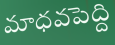
మాధవపెద్ది